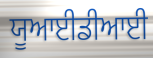
ਯੂਆਈਡੀਆਈ